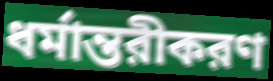
ধর্মান্তরীকরণ